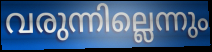
വരുന്നില്ലെന്നും